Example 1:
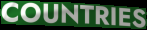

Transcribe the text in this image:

COUNTRIES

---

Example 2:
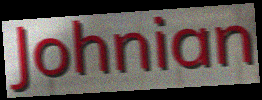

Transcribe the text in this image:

Johnian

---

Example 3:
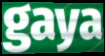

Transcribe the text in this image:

gaya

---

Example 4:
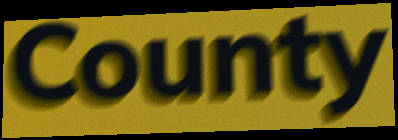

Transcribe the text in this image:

County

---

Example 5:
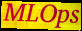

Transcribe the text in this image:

MLOps